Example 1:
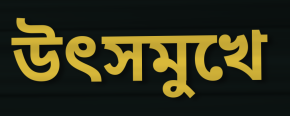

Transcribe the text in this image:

উৎসমুখে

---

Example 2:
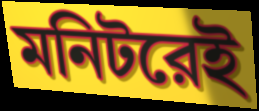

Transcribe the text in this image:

মনিটরেই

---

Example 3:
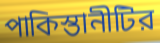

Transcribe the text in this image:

পাকিস্তানীটির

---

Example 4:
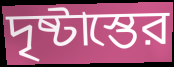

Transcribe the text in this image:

দৃষ্টাস্তের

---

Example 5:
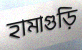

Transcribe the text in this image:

হামাগুড়ি